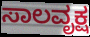
ಸಾಲವೃಕ್ಷ